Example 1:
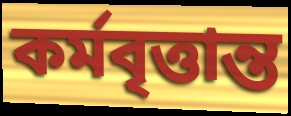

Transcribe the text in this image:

কর্মবৃত্তান্ত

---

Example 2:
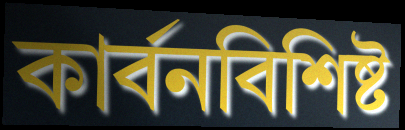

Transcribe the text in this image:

কার্বনবিশিষ্ট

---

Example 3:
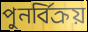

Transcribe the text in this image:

পুনর্বিক্রয়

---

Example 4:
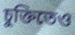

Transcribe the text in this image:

চুক্তিতেও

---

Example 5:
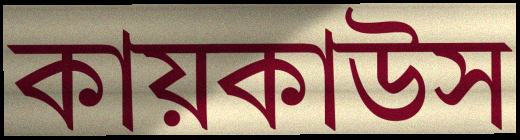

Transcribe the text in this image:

কায়কাউস